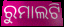
ରୁମାଲଟି